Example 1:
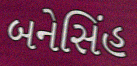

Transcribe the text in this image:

બનેસિંહ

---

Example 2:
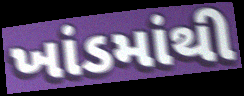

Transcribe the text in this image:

ખાંડમાંથી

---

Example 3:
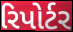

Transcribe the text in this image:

રિપોર્ટર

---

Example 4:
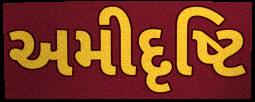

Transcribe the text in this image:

અમીદૃષ્ટિ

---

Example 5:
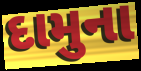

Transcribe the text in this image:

દામુના